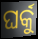
ଘର୍କୁ